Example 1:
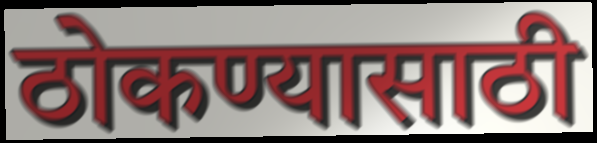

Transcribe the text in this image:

ठोकण्यासाठी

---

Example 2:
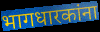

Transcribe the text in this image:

भागधारकांना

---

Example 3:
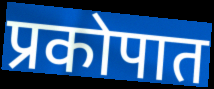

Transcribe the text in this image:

प्रकोपात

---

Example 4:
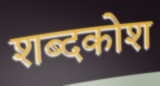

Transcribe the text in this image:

शब्दकोश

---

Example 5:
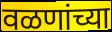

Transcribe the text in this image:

वळणांच्या